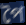
পৈ